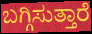
ಬಗ್ಗಿಸುತ್ತಾರೆ